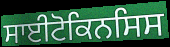
ਸਾਈਟੋਕਿਨਸਿਸ